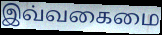
இவ்வகைமை